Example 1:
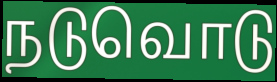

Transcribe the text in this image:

நடுவொடு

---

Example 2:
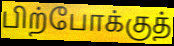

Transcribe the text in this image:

பிற்போக்குத்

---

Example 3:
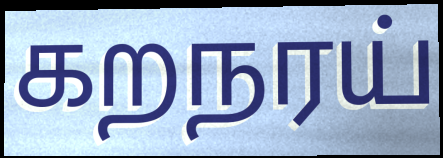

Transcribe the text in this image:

கறநரய்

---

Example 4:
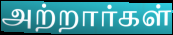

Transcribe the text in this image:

அற்றார்கள்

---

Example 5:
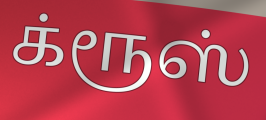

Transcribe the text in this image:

க்ரூஸ்